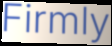
Firmly